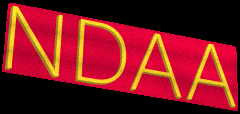
NDAA